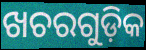
ଖଚରଗୁଡ଼ିକ